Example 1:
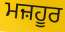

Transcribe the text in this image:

ਮਜ਼ਹੂਰ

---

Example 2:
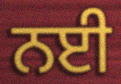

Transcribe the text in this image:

ਨਈ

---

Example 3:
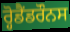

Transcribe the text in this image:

ਰ੍ਹੋਡੈਂਡਰੌਨਸ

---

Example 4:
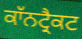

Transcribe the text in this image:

ਕਾੱਨਟ੍ਰੈਕਟ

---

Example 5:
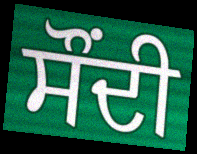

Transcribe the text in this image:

ਸੌਂਦੀ